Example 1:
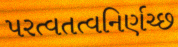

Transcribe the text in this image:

પરત્વતત્વનિર્ણચ્છ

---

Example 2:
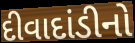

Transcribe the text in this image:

દીવાદાંડીનો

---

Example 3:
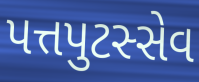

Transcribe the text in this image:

પત્તપુટસ્સેવ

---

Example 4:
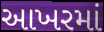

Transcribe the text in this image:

આખરમાં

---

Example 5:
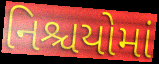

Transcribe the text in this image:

નિશ્ચયોમાં